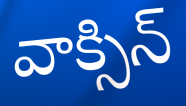
వాక్సిన్